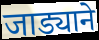
जाड्याने